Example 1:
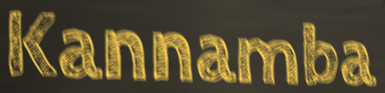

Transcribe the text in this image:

Kannamba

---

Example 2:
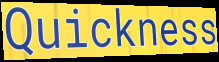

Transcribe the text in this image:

Quickness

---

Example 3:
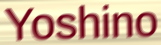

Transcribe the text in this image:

Yoshino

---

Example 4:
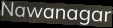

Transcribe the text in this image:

Nawanagar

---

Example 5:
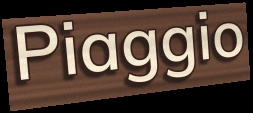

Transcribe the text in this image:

Piaggio